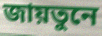
জায়তুনে